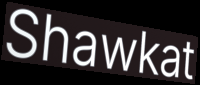
Shawkat